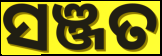
ସଞ୍ଜତ